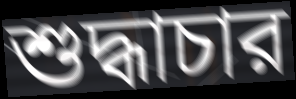
শুদ্ধাচার